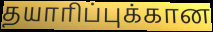
தயாரிப்புக்கான